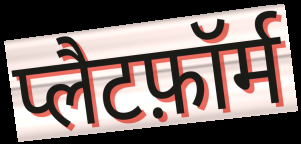
प्लैटफ़ॉर्म